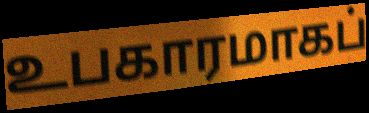
உபகாரமாகப்